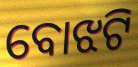
ବୋଝଟି